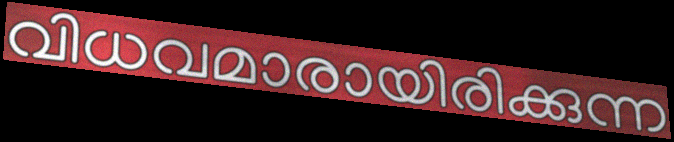
വിധവമാരായിരിക്കുന്ന